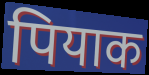
पियाक